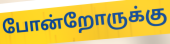
போன்றோருக்கு